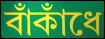
বাঁকাঁধে